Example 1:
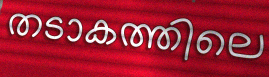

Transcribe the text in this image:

തടാകത്തിലെ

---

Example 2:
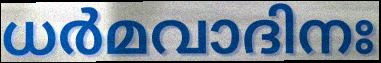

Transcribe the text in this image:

ധർമവാദിനഃ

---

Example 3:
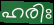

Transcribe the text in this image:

ഹരിഃ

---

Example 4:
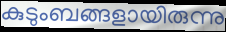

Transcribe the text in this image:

കുടുംബങ്ങളായിരുന്നു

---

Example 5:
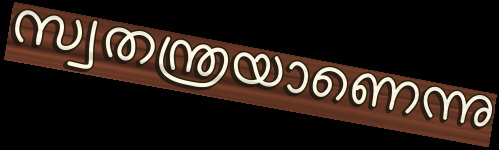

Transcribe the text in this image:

സ്വതന്ത്രയാണെന്നു